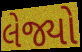
લેજ્યો